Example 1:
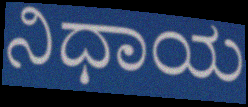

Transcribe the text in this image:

ನಿಧಾಯ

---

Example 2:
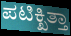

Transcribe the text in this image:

ಪಟಿಕ್ಖಿತ್ತಾ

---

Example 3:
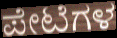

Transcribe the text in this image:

ಪೇಟೆಗಳ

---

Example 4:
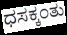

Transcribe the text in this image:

ಧಸಕ್ಕಂತು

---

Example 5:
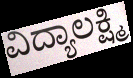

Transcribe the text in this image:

ವಿದ್ಯಾಲಕ್ಷ್ಮಿ